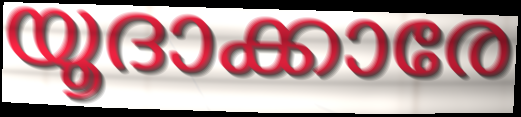
യൂദാക്കാരേ